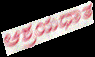
ಆಶ್ರಯಧಾತ